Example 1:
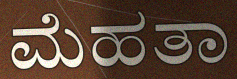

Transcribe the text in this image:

ಮೆಹತಾ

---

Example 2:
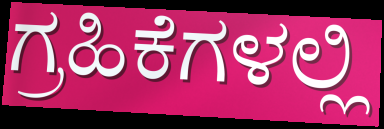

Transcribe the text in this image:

ಗ್ರಹಿಕೆಗಳಲ್ಲಿ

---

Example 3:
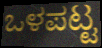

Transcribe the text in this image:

ಒಳಪಟ್ಟ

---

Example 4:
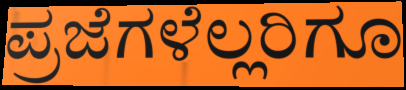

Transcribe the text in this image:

ಪ್ರಜೆಗಳೆಲ್ಲರಿಗೂ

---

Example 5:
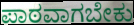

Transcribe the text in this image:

ಪಾಠವಾಗಬೇಕು